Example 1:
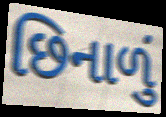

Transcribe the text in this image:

છિનાળું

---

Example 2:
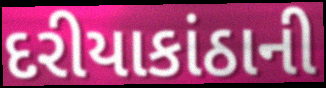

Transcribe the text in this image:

દરીયાકાંઠાની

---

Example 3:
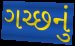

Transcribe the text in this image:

ગચ્છનું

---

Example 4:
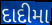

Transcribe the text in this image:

દાદીમા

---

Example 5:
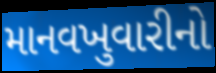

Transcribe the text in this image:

માનવખુવારીનો